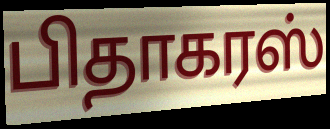
பிதாகரஸ்